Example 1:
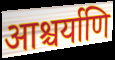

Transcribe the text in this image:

आश्चर्याणि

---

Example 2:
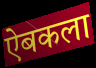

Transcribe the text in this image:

ऐबकला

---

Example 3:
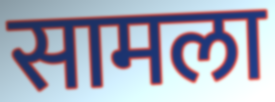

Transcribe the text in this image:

सामला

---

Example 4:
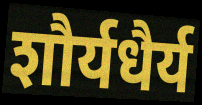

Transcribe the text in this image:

शौर्यधैर्य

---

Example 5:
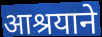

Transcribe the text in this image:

आश्रयाने